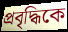
প্রবৃদ্ধিকে